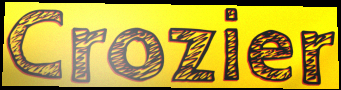
Crozier